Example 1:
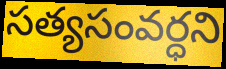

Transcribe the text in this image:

సత్యసంవర్ధని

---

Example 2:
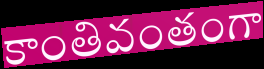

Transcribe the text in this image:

కాంతివంతంగా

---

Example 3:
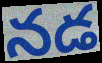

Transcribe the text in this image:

నడ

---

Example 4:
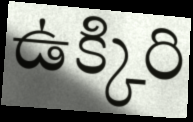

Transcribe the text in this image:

ఉక్కిరి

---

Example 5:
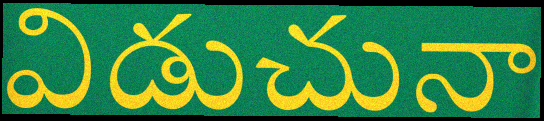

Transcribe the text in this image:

విడుచునా